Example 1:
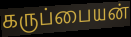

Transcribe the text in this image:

கருப்பையன்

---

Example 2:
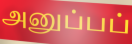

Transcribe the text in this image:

அனுப்பப்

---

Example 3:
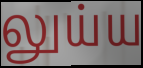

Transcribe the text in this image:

லுய்ய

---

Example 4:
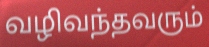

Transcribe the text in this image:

வழிவந்தவரும்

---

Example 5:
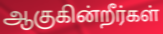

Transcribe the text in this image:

ஆகுகின்றீர்கள்